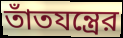
তাঁতযন্ত্রের